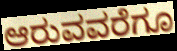
ಆರುವವರೆಗೂ